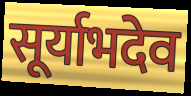
सूर्याभदेव